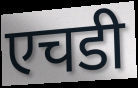
एचडी